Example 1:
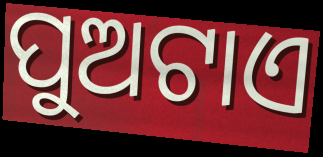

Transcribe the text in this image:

ପୁଅଟାଏ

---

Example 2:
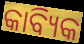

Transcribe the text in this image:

କାବ୍ୟିକ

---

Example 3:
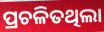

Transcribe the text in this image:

ପ୍ରଚଳିତଥିଲା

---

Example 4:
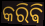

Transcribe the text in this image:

କରିଵି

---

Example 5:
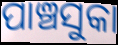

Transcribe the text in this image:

ପାଞ୍ଚସୁକା